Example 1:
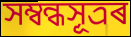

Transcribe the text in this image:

সম্বন্ধসূত্ৰৰ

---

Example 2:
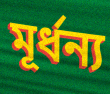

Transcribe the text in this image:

মূৰ্ধন্য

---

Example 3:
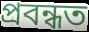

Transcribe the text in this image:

প্ৰবন্ধত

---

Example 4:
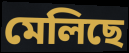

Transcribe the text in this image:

মেলিছে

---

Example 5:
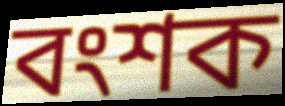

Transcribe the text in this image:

বংশক